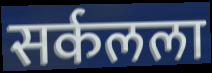
सर्कलला